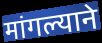
मांगल्याने